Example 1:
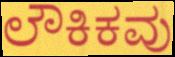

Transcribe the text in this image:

ಲೌಕಿಕವು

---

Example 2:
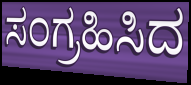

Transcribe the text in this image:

ಸಂಗ್ರಹಿಸಿದ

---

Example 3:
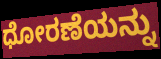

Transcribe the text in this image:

ಧೋರಣೆಯನ್ನು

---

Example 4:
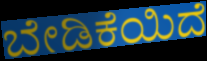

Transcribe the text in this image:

ಬೇಡಿಕೆಯಿದೆ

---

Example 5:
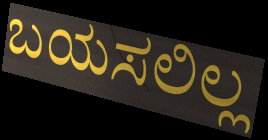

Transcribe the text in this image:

ಬಯಸಲಿಲ್ಲ